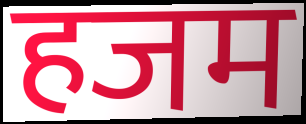
हजम